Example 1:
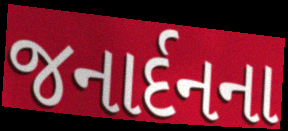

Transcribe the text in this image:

જનાર્દનના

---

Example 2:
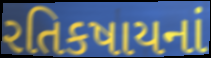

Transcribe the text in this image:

રતિકષાયનાં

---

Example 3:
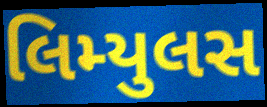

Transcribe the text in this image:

લિમ્યુલસ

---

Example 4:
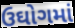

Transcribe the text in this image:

ઉઘોગમાં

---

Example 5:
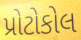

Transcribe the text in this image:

પ્રોટોકોલ